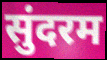
सुंदरम